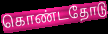
கொண்டதோடு